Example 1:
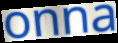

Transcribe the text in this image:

onna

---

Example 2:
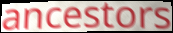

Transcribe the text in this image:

ancestors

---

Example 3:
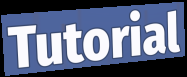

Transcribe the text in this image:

Tutorial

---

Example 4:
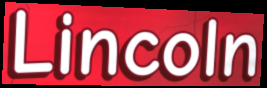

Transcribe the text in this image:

Lincoln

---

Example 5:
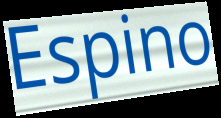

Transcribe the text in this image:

Espino